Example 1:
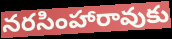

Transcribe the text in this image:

నరసింహారావుకు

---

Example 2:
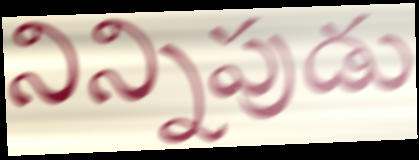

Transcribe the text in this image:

నిన్నిపుడు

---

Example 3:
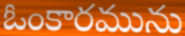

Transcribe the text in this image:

ఓంకారమును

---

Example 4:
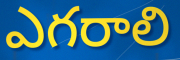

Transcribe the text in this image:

ఎగరాలి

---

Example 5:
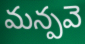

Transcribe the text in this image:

మన్పవె